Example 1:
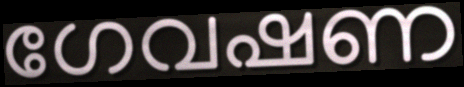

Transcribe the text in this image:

ഗേവഷണ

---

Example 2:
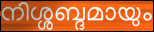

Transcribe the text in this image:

നിശ്ശബ്ദമായും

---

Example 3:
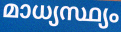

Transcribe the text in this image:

മാധ്യസ്ഥ്യം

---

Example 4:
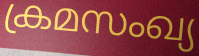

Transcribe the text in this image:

ക്രമസംഖ്യ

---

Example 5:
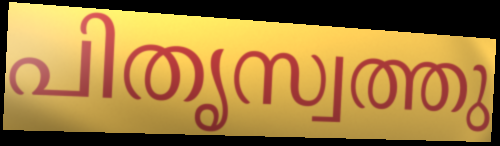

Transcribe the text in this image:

പിതൃസ്വത്തു